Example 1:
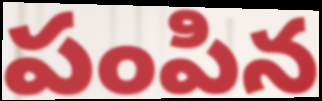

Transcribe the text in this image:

పంపిన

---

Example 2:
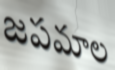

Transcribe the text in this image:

జపమాల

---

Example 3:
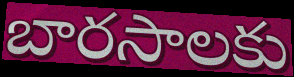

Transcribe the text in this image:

బారసాలకు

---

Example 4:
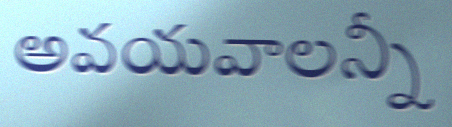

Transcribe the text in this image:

అవయవాలన్నీ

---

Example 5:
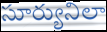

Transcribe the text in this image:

సూర్యునిలా